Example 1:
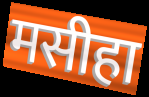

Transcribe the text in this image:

मसीहा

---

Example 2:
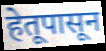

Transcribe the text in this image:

हेतूपासून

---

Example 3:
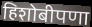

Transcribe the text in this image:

हिशोबीपणा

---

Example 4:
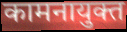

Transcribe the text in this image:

कामनायुक्त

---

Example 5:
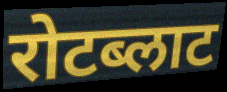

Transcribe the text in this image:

रोटब्लाट